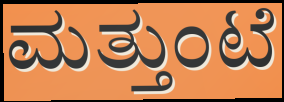
ಮತ್ತುಂಟೆ